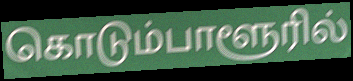
கொடும்பாளூரில்